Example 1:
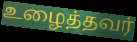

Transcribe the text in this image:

உழைத்தவர்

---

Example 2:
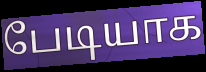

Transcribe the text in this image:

பேடியாக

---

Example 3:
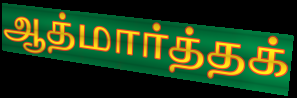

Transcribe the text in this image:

ஆத்மார்த்தக்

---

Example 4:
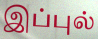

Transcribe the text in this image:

இப்புல்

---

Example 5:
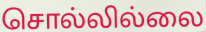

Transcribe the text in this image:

சொல்லில்லை